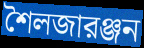
শৈলজারঞ্জন